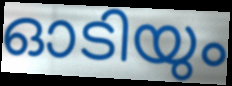
ഓടിയും